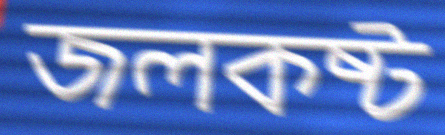
জলকষ্ট